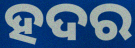
ହଦର